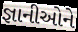
જ્ઞાનીઓને